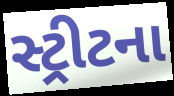
સ્ટ્રીટના